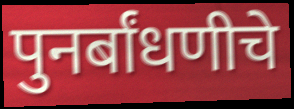
पुनर्बांधणीचे